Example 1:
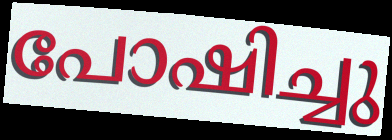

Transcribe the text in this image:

പോഷിച്ചു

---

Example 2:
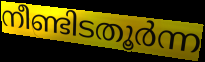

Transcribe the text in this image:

നീണ്ടിടതൂർന്ന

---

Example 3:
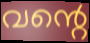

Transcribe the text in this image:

വന്റെ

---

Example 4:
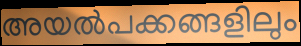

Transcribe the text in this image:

അയൽപക്കങ്ങളിലും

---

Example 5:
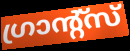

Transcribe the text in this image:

ഗ്രാന്റ്സ്